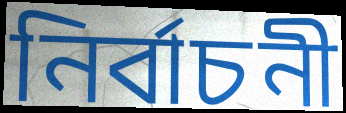
নির্বাচনী